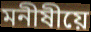
মনীষীয়ে